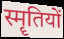
स्मॄतियों